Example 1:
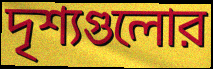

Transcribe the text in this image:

দৃশ্যগুলোর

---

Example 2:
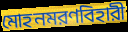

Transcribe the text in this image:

মোহনমরণবিহারী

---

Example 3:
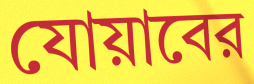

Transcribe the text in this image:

যোয়াবের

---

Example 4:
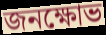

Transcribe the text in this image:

জনক্ষোভ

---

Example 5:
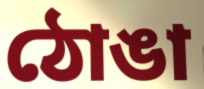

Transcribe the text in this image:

ঠোঙা